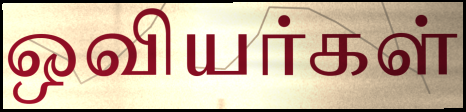
ஒவியர்கள்